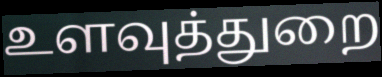
உளவுத்துறை